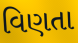
વિણતા